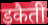
डकैती